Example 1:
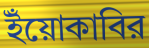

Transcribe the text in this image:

ইঁয়োকাবির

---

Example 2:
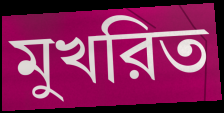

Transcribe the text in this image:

মুখরিত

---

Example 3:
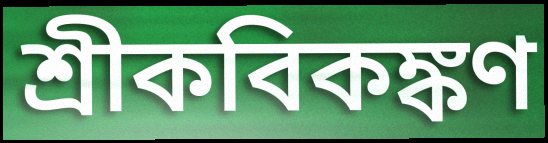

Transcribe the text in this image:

শ্রীকবিকঙ্কণ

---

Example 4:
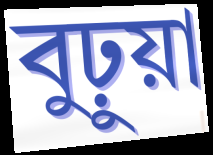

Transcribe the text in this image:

বুঢ়ুয়া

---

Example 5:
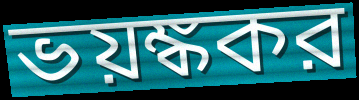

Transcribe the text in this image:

ভয়ঙ্ককর